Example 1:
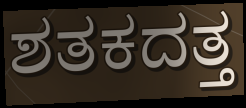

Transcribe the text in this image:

ಶತಕದತ್ತ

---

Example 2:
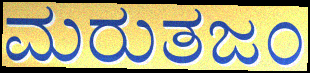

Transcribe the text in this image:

ಮರುತಜಂ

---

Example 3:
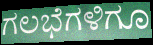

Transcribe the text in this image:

ಗಲಭೆಗಳಿಗೂ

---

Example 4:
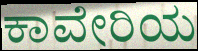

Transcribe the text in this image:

ಕಾವೇರಿಯ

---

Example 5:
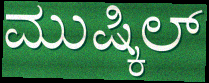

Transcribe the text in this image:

ಮುಷ್ಕಿಲ್